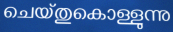
ചെയ്തുകൊള്ളുന്നു